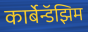
कार्बेन्डॅझिम